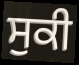
ਸੁਕੀ